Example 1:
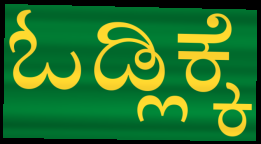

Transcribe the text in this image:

ಓಡ್ಲಿಕ್ಕೆ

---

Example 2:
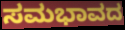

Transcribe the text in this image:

ಸಮಭಾವದ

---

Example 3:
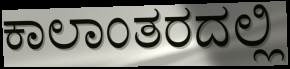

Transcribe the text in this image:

ಕಾಲಾಂತರದಲ್ಲಿ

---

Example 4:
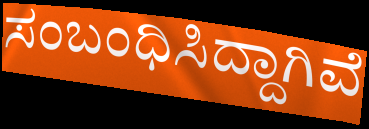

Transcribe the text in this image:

ಸಂಬಂಧಿಸಿದ್ದಾಗಿವೆ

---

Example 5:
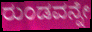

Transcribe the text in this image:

ರುಂಡವನ್ನೇ